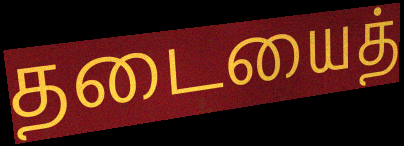
தடையைத்